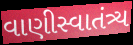
વાણીસ્વાતંત્ર્ય